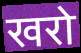
खरो